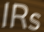
IRs